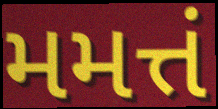
મમત્તં